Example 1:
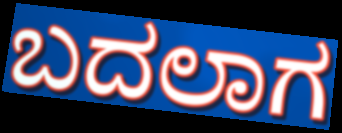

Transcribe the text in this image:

ಬದಲಾಗ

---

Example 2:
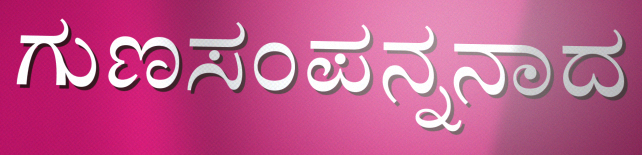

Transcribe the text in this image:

ಗುಣಸಂಪನ್ನನಾದ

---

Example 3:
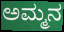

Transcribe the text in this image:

ಅಮ್ಮನ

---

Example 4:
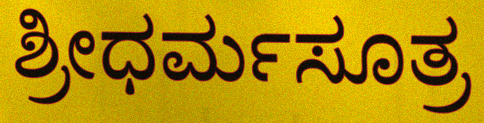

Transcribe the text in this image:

ಶ್ರೀಧರ್ಮಸೂತ್ರ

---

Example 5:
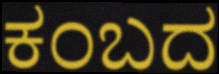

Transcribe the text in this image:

ಕಂಬದ